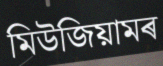
মিউজিয়ামৰ